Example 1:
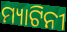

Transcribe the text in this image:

ମ୍ୟାଟିନୀ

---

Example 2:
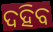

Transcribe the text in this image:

ଦହିବ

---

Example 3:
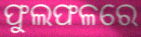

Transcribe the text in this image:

ଫୁଲଫଳରେ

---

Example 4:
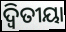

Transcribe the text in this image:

ଦ୍ୱିତୀୟା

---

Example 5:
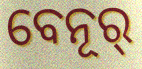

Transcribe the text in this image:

ବେନୂର୍